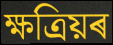
ক্ষত্ৰিয়ৰ